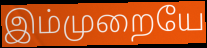
இம்முறையே